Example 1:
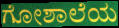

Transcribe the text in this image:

ಗೋಶಾಲೆಯ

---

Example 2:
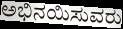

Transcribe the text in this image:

ಅಭಿನಯಿಸುವರು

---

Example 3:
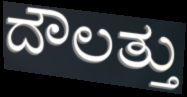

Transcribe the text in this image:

ದೌಲತ್ತು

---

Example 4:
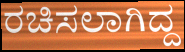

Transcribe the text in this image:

ರಚಿಸಲಾಗಿದ್ದ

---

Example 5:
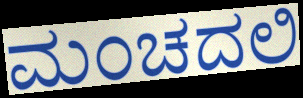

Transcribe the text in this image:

ಮಂಚದಲಿ